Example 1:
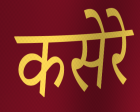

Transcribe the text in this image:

कसेरे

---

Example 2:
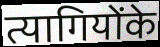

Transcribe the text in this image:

त्यागियोंके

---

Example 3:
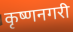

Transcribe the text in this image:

कृष्णनगरी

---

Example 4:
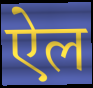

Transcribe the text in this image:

ऐल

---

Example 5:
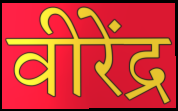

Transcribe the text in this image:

वीरेंद्र